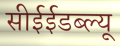
सीईईडब्ल्यू